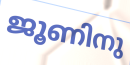
ജൂണിനു